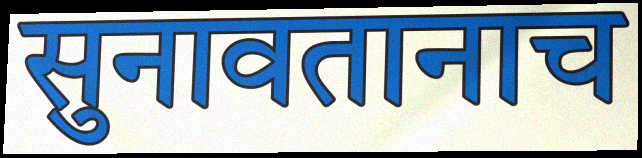
सुनावतानाच